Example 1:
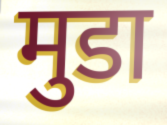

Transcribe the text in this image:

मुडा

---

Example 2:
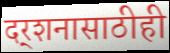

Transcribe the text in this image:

दर्शनासाठीही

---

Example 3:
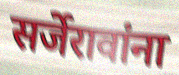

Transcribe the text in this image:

सर्जेरावांना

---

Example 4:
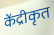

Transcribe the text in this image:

केंद्रीकृत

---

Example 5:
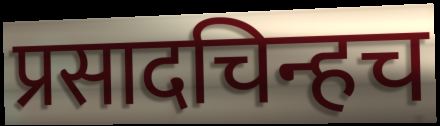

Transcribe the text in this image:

प्रसादचिन्हच